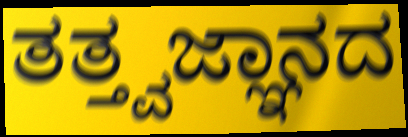
ತತ್ತ್ವಜ್ಞಾನದ